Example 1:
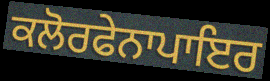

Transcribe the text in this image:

ਕਲੋਰਫੇਨਾਪਾਇਰ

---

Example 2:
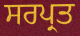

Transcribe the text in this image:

ਸਰਪ੍ਰਤ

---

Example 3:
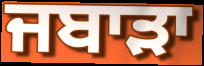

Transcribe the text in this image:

ਜਬਾੜਾ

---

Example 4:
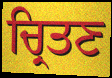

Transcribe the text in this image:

ਚ੍ਰਿਤਣ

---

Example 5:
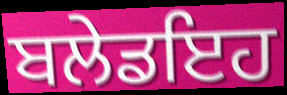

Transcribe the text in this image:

ਬਲੇਡਇਹ